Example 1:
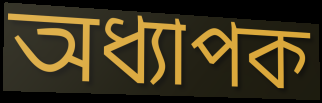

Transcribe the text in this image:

অধ্যাপক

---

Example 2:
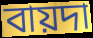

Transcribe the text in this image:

বায়দা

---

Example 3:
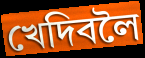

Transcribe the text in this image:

খেদিবলৈ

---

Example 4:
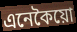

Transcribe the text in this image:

এনেকৈয়ো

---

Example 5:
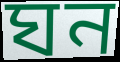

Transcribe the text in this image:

ঘন